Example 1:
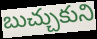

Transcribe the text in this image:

బుచ్చుకుని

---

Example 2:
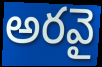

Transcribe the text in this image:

అరవై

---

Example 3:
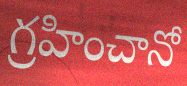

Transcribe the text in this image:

గ్రహించానో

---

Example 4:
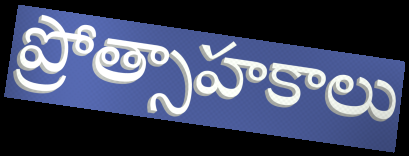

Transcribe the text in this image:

ప్రోత్సాహకాలు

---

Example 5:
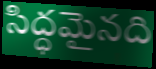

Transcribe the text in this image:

సిద్ధమైనది